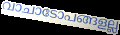
വാചാടോപങ്ങളല്ല